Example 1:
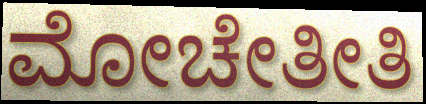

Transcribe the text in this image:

ಮೋಚೇತೀತಿ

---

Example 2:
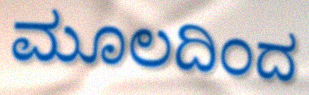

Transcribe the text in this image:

ಮೂಲದಿಂದ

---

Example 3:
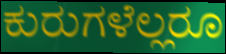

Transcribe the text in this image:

ಕುರುಗಳೆಲ್ಲರೂ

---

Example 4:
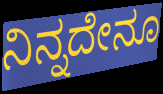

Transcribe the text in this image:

ನಿನ್ನದೇನೂ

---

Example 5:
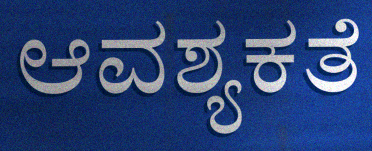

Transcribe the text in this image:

ಆವಶ್ಯಕತೆ